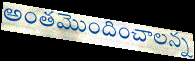
అంతమొందించాలన్న